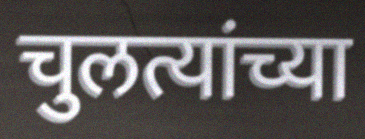
चुलत्यांच्या